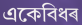
একেবিধৰ